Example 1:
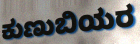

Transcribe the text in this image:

ಕುಣುಬಿಯರ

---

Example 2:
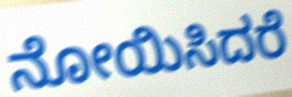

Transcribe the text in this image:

ನೋಯಿಸಿದರೆ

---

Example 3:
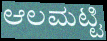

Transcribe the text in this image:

ಆಲಮಟ್ಟಿ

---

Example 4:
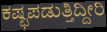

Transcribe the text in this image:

ಕಷ್ಟಪಡುತ್ತಿದ್ದೀರಿ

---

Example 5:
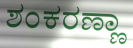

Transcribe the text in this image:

ಶಂಕರಣ್ಣಾ